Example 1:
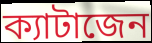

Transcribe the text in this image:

ক্যাটাজেন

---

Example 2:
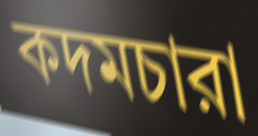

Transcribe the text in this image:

কদমচারা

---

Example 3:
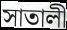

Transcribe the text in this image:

সাতালী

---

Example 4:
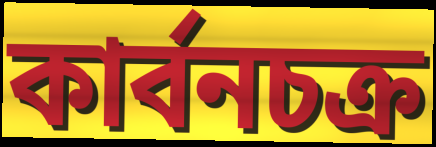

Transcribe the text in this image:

কার্বনচক্র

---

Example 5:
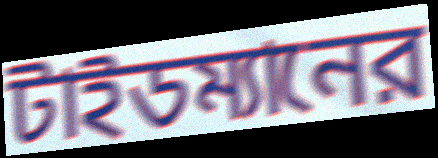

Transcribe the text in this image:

টাইডম্যানের